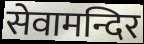
सेवामन्दिर